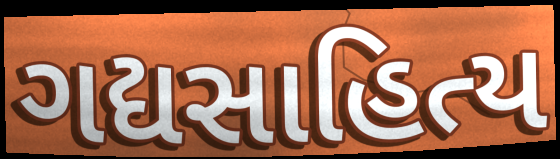
ગદ્યસાહિત્ય